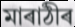
মাৰাঠীৰ